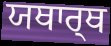
ਯਥਾਰ੍ਥ